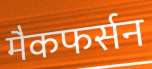
मैकफर्सन